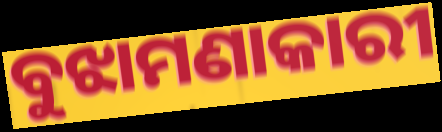
ବୁଝାମଣାକାରୀ